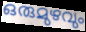
ഒരുമുഴവും